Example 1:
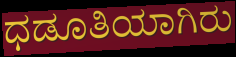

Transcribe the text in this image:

ಧಡೂತಿಯಾಗಿರು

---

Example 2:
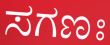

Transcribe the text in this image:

ಸಗಣಃ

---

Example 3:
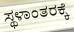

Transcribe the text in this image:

ಸ್ಥಳಾಂತರಕ್ಕೆ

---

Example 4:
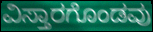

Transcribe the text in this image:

ವಿಸ್ತಾರಗೊಂಡವು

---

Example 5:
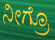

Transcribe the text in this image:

ನೀಗ್ರೊ